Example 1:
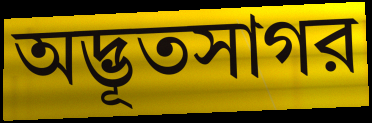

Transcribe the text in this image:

অদ্ভূতসাগর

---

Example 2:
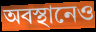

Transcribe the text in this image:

অবস্থানেও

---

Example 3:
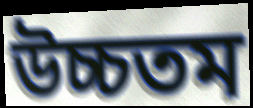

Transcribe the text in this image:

উচ্চতম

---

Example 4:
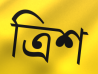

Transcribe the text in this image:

ত্রিশ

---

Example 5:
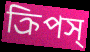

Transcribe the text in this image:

ক্রিপস্